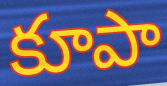
కూపా